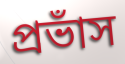
প্রভাঁস